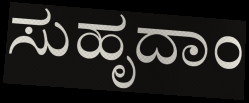
ಸುಹೃದಾಂ